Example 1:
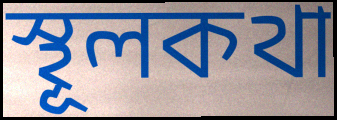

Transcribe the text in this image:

স্থূলকথা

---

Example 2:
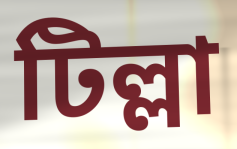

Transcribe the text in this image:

টিল্লা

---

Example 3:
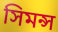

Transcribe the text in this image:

সিমন্স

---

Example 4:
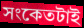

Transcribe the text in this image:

সংকেতটাই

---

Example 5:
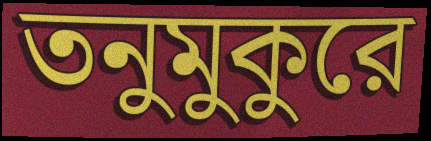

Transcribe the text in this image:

তনুমুকুরে